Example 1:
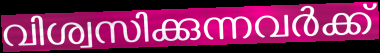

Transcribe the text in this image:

വിശ്വസിക്കുന്നവർക്ക്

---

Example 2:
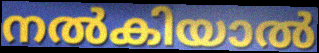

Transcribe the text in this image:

നൽകിയാൽ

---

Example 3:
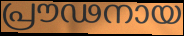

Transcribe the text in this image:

പ്രൗഢനായ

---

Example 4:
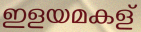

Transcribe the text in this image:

ഇളയമകള്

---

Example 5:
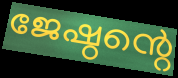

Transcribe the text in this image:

ജേഷ്ഠന്റെ